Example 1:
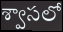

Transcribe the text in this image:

శ్వాసలో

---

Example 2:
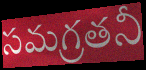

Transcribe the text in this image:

సమగ్రతనీ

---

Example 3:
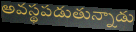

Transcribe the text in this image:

అవస్థపడుతున్నాడు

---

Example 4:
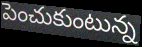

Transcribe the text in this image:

పెంచుకుంటున్న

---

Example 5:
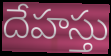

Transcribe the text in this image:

దేహస్తు